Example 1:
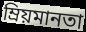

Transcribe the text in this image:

ম্রিয়মানতা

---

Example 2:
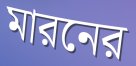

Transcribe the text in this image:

মারনের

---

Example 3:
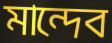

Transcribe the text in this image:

মান্দেব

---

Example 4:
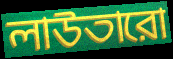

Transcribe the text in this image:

লাউতারো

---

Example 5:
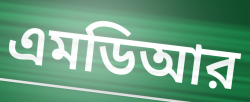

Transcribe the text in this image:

এমডিআর